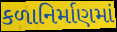
કળાનિર્માણમાં